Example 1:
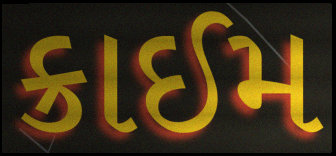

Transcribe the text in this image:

ક્રાઈમ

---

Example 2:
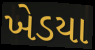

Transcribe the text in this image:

ખેડયા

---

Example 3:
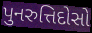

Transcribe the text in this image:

પુનરુત્તિદોસો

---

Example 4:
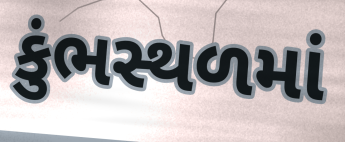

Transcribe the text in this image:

કુંભસ્થળમાં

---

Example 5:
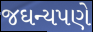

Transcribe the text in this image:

જઘન્યપણે